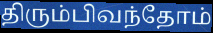
திரும்பிவந்தோம்